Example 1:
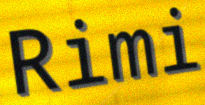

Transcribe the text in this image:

Rimi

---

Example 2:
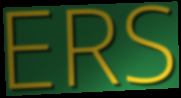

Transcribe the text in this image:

ERS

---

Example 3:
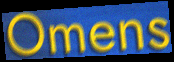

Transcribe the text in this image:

Omens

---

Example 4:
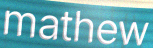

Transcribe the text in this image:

mathew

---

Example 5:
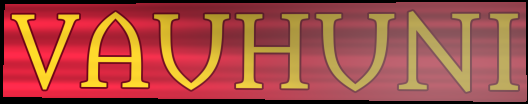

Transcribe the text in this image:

VAUHUNI